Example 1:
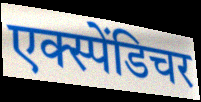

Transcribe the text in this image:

एक्स्पेंडिचर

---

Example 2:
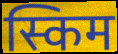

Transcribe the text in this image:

स्किम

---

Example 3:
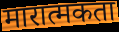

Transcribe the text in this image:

मारात्मकता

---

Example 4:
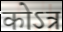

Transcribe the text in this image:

कोऽत्र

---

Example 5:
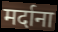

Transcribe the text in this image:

मर्दाना